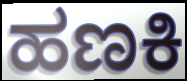
ಹಣಕಿ